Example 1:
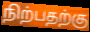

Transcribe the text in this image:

நிற்பதற்கு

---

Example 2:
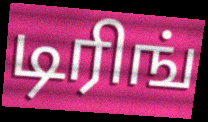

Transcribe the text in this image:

டிரிங்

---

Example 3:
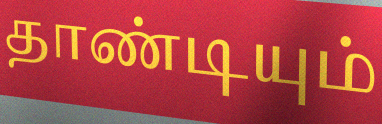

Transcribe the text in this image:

தாண்டியும்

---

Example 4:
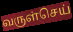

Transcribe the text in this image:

வருள்செய்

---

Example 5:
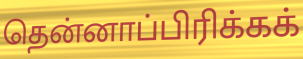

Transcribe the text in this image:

தென்னாப்பிரிக்கக்